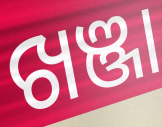
ଖଞ୍ଜା